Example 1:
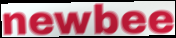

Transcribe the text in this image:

newbee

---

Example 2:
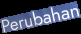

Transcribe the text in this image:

Perubahan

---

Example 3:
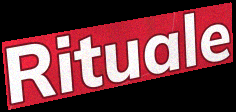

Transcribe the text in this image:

Rituale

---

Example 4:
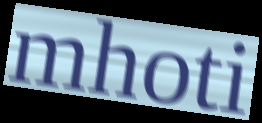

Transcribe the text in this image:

mhoti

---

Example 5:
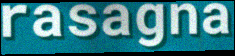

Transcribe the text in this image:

rasagna